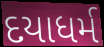
દયાધર્મ